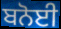
ਬਨੋਈ